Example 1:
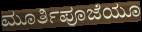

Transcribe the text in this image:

ಮೂರ್ತಿಪೂಜೆಯೂ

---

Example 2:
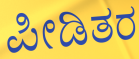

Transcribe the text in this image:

ಪೀಡಿತರ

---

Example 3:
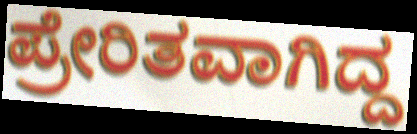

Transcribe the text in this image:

ಪ್ರೇರಿತವಾಗಿದ್ದ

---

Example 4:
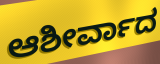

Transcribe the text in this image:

ಆಶೀರ್ವಾದ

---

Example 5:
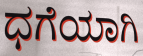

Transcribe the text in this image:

ಧಗೆಯಾಗಿ